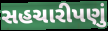
સહચારીપણું